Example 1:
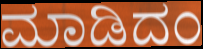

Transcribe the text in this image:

ಮಾಡಿದಂ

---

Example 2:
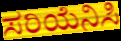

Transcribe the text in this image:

ಸರಿಯೆನಿಸಿ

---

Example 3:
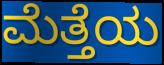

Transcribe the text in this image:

ಮೆತ್ತೆಯ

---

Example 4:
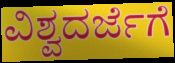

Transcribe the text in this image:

ವಿಶ್ವದರ್ಜೆಗೆ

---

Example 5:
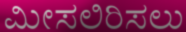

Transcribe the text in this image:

ಮೀಸಲಿರಿಸಲು